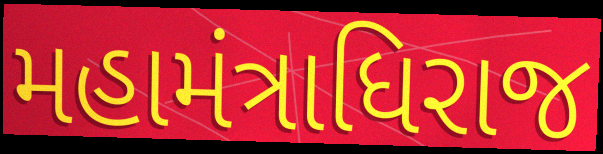
મહામંત્રાધિરાજ